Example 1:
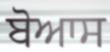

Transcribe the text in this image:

ਬੋਆਸ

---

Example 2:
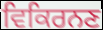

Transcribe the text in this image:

ਵਿਕਿਰਨਣ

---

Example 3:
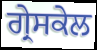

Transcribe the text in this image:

ਗ੍ਰੇਸਕੇਲ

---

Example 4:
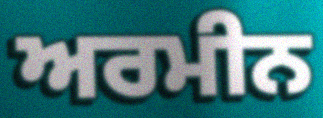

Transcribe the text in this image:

ਅਰਮੀਨ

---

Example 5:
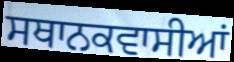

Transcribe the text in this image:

ਸਥਾਨਕਵਾਸੀਆਂ